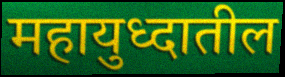
महायुध्दातील